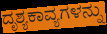
ದೃಶ್ಯಕಾವ್ಯಗಳನ್ನು